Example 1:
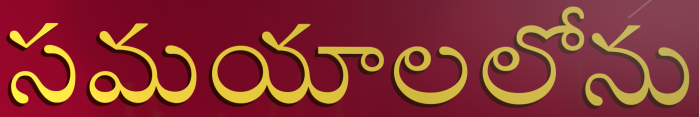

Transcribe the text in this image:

సమయాలలోను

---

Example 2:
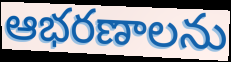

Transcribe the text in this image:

ఆభరణాలను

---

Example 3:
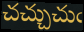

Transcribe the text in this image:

చచ్చుచుఁ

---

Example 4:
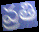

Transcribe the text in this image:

వ్రతి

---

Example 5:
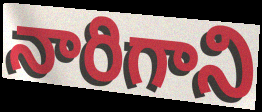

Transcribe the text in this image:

నారిగాని